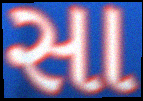
સા